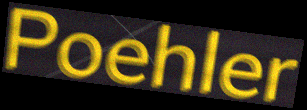
Poehler